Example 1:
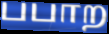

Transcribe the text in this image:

பபாற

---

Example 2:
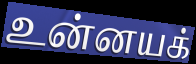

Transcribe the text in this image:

உன்னயக்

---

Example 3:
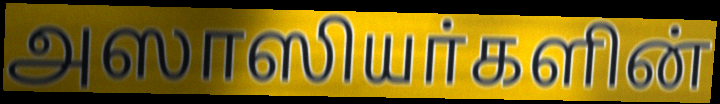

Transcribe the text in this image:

அஸாஸியர்களின்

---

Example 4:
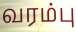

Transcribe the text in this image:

வரம்பு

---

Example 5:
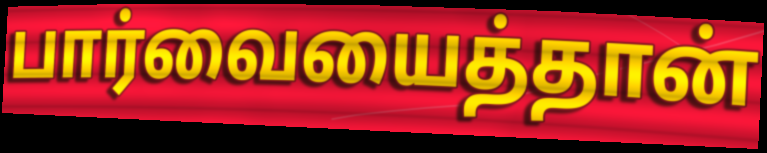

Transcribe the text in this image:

பார்வையைத்தான்